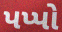
પપ્પો